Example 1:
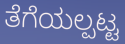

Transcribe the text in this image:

ತೆಗೆಯಲ್ಪಟ್ಟ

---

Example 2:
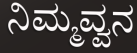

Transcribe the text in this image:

ನಿಮ್ಮವ್ವನ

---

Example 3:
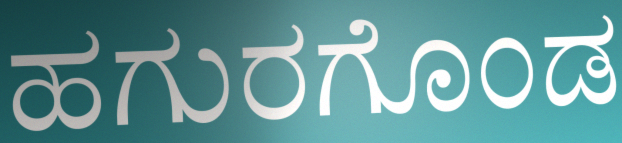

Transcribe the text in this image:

ಹಗುರಗೊಂಡ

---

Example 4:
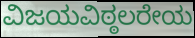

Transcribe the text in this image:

ವಿಜಯವಿಠ್ಠಲರೇಯ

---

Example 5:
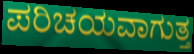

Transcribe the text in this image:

ಪರಿಚಯವಾಗುತ್ತ